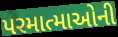
પરમાત્માઓની